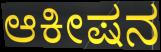
ಆಕೀಷನ